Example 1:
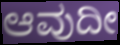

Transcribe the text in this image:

ಆವುದೀ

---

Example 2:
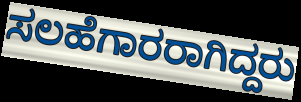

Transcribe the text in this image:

ಸಲಹೆಗಾರರಾಗಿದ್ದರು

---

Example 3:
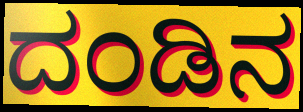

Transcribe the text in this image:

ದಂಡಿನ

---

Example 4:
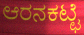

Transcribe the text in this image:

ಆರನಕಟ್ಟೆ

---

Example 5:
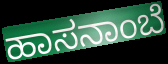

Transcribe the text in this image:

ಹಾಸನಾಂಬೆ